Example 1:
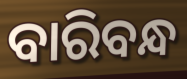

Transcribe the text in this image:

ବାରିବନ୍ଧ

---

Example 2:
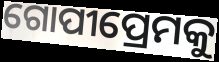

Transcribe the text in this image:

ଗୋପୀପ୍ରେମକୁ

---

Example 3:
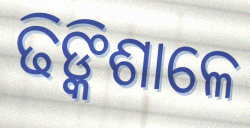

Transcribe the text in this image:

ଢିଙ୍କିଶାଳେ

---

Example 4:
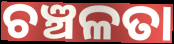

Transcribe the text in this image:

ଚଞ୍ଚଳତା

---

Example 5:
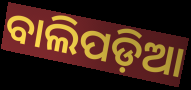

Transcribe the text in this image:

ବାଲିପଡ଼ିଆ